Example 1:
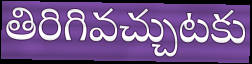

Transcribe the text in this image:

తిరిగివచ్చుటకు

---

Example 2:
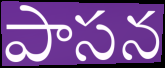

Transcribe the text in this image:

పాసన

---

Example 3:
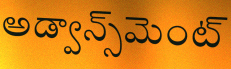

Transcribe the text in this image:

అడ్వాన్స్‌మెంట్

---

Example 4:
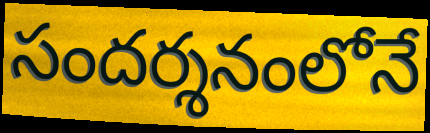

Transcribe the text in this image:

సందర్శనంలోనే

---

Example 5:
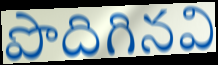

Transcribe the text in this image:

పొదిగినవి